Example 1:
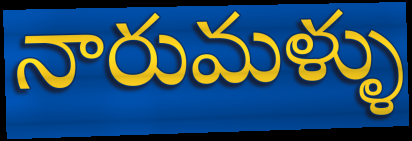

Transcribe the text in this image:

నారుమళ్ళు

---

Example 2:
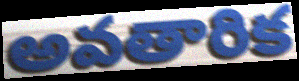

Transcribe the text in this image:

అవతారిక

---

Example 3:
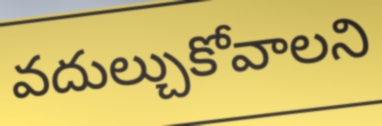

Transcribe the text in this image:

వదుల్చుకోవాలని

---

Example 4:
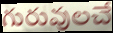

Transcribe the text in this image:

గురువులచే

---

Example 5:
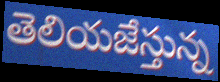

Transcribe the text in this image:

తెలియజేస్తున్న